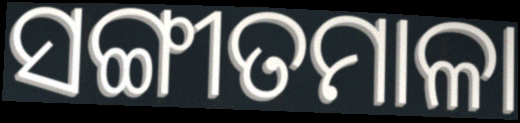
ସଙ୍ଗୀତମାଳା